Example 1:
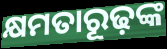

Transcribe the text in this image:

କ୍ଷମତାରୂଢ଼ଙ୍କ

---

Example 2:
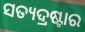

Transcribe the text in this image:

ସତ୍ୟଦ୍ରଷ୍ଟାର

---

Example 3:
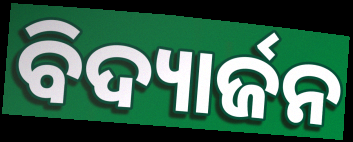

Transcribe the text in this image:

ବିଦ୍ୟାର୍ଜନ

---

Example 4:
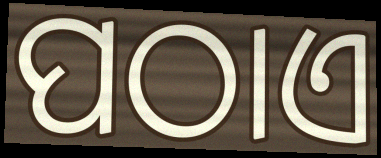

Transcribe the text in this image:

ପଠାଏ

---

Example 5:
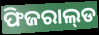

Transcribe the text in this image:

ଫିଜରାଲ୍‌ଡ